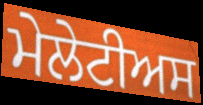
ਮੇਲੇਟੀਅਸ